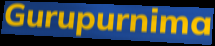
Gurupurnima